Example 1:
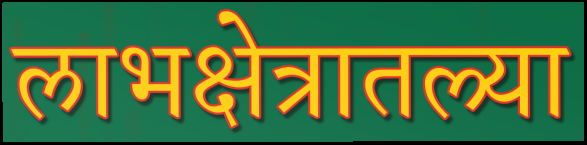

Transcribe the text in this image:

लाभक्षेत्रातल्या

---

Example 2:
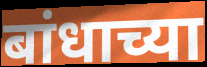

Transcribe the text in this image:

बांधाच्या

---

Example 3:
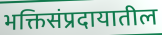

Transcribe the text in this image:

भक्तिसंप्रदायातील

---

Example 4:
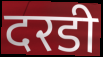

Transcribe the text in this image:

दरडी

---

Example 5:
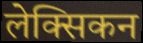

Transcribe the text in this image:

लेक्सिकन